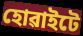
হোৱাইটে